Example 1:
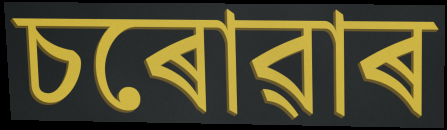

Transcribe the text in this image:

চৰোৱাৰ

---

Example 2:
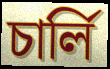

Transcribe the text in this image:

চাৰ্লি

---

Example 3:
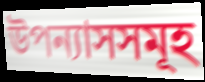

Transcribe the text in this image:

উপন্যাসসমূহ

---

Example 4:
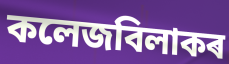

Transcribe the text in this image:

কলেজবিলাকৰ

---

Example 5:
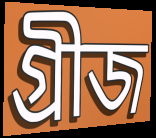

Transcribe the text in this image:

গ্ৰীজ